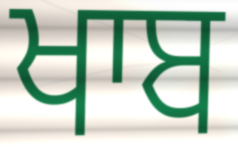
ਖਾਬ